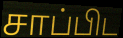
சாப்பிட